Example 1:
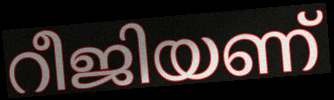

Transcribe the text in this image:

റീജിയണ്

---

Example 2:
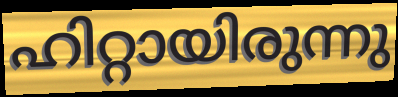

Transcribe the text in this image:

ഹിറ്റായിരുന്നു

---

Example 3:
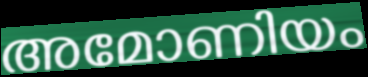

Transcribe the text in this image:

അമോണിയം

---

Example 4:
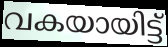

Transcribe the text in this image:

വകയായിട്ട്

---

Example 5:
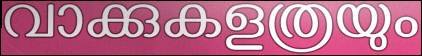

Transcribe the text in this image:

വാക്കുകളത്രയും